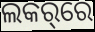
ଲକର୍‌ରେ